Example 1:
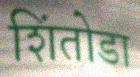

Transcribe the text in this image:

शिंतोडा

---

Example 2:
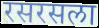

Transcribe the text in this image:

रसरसला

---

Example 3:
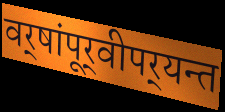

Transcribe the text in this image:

वर्षांपूर्वीपर्यन्त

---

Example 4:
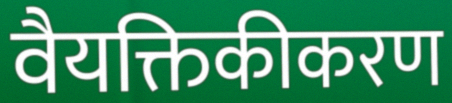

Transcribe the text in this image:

वैयक्तिकीकरण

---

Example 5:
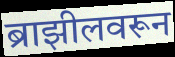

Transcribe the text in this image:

ब्राझीलवरून